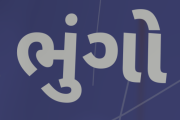
ભુંગો